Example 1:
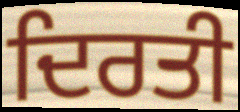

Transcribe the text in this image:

ਦਿਰਤੀ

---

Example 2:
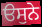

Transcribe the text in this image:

ੳਸੁਨੇ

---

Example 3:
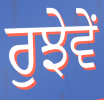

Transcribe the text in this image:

ਰੁਝੇਵੇਂ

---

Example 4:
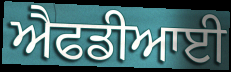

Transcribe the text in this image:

ਐਫਡੀਆਈ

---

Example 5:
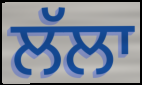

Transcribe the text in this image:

ਲੱਲਾ